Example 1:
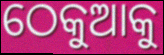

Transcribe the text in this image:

ଠେକୁଆକୁ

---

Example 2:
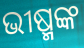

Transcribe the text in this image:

ଭୀଷ୍ମଙ୍କ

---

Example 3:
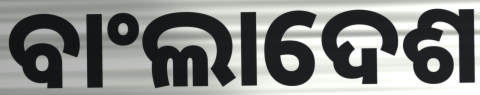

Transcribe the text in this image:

ବାଂଲାଦେଶ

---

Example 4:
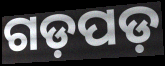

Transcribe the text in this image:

ଗଡ଼ପଡ଼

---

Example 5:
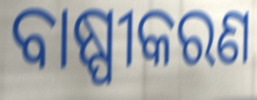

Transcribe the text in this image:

ବାଷ୍ପୀକରଣ